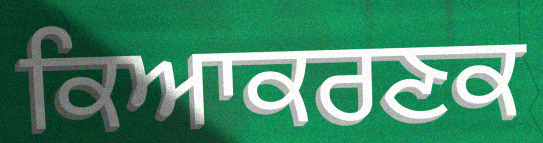
ਕਿਆਕਰਣਕ